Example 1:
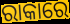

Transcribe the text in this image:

ରାକାରେ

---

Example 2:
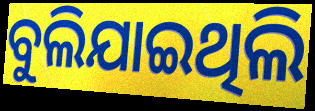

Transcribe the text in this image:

ବୁଲିଯାଇଥିଲି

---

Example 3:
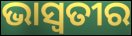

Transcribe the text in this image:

ଭାସ୍ଵତୀର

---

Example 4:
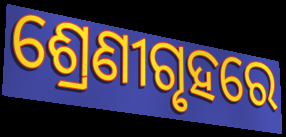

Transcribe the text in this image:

ଶ୍ରେଣୀଗୃହରେ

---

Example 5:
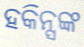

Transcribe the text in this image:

ହକିନ୍ସଙ୍କ